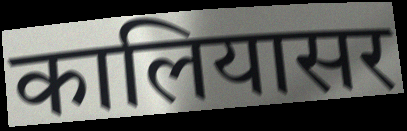
कालियासर